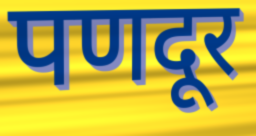
पणदूर